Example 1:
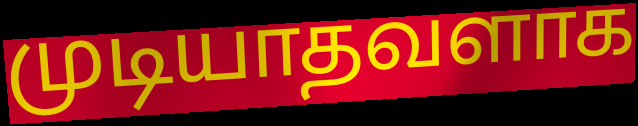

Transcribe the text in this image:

முடியாதவளாக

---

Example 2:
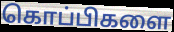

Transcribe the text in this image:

கொப்பிகளை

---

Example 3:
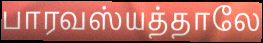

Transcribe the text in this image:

பாரவஸ்யத்தாலே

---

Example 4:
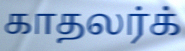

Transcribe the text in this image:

காதலர்க்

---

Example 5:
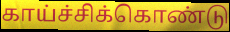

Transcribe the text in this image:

காய்ச்சிக்கொண்டு